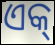
ଏକ୍